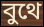
বুথে